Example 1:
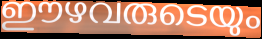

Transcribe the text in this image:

ഈഴവരുടെയും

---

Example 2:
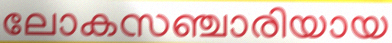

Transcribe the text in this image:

ലോകസഞ്ചാരിയായ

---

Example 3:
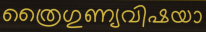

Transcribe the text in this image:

ത്രൈഗുണ്യവിഷയാ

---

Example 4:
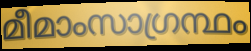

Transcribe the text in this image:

മീമാംസാഗ്രന്ഥം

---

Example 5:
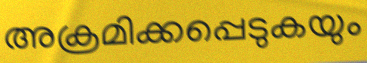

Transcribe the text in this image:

അക്രമിക്കപ്പെടുകയും